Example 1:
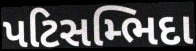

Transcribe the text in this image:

પટિસમ્ભિદા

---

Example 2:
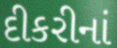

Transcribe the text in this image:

દીકરીનાં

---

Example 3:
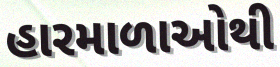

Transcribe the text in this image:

હારમાળાઓથી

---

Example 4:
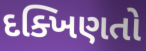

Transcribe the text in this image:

દક્ખિણતો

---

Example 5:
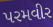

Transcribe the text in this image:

પરમવીર